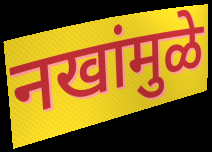
नखांमुळे